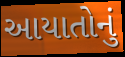
આયાતોનું